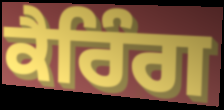
ਕੈਰਿੰਗ